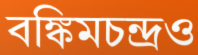
বঙ্কিমচন্দ্রও